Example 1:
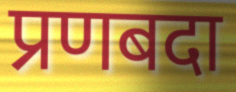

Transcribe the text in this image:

प्रणबदा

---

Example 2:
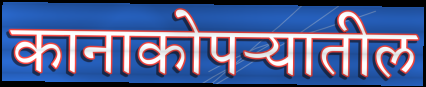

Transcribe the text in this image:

कानाकोपऱ्यातील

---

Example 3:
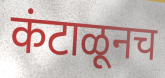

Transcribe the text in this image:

कंटाळूनच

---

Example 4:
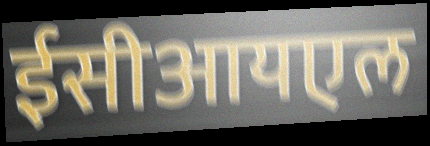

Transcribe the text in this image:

ईसीआयएल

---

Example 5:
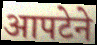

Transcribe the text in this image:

आपटेने